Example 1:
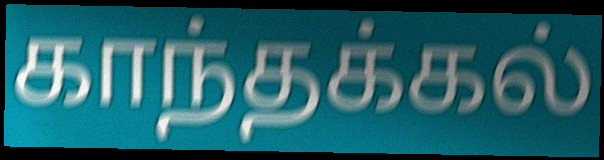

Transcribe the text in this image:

காந்தக்கல்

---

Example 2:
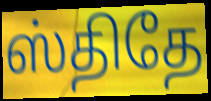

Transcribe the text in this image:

ஸ்திதே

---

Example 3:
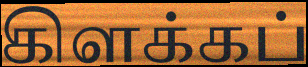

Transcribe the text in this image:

கிளக்கப்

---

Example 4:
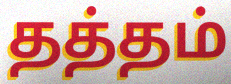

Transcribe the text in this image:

தத்தம்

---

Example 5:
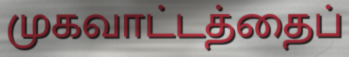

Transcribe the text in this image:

முகவாட்டத்தைப்